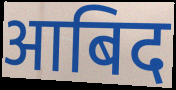
आबिद